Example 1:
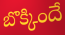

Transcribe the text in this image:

బొక్కిందే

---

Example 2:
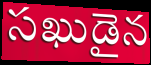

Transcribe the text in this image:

సఖుడైన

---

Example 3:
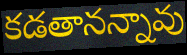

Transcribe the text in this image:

కడతానన్నావు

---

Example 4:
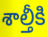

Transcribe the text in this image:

శాల్తీకి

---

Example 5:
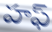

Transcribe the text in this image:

హఫ్